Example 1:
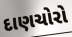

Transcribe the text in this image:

દાણચોરો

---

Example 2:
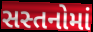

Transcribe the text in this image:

સસ્તનોમાં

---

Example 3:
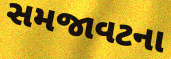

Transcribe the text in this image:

સમજાવટના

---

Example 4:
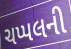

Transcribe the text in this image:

ચપ્પલની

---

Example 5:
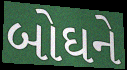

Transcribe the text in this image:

બોઘને